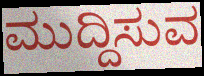
ಮುದ್ದಿಸುವ